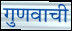
गुणवाची